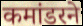
कमांडरने